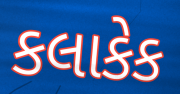
કલાકેક